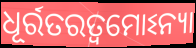
ଧୂର୍ରତରତ୍ୱମୋଽନ୍ୟା